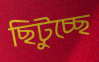
ছিটুচ্ছে